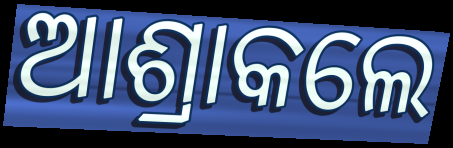
ଆଶ୍ରାକଲେ